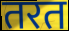
तरत